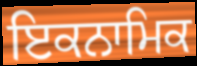
ਇਕਨਾਮਿਕ